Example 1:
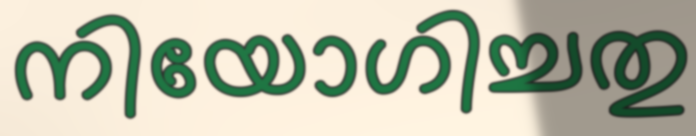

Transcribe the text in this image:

നിയോഗിച്ചതു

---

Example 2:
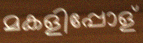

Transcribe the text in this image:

മകളിപ്പോള്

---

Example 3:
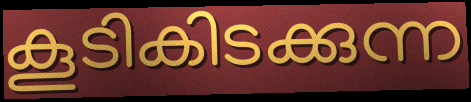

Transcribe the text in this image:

കൂടികിടക്കുന്ന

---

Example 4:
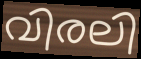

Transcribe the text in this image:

വിരലി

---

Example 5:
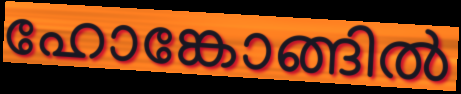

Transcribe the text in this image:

ഹോങ്കോങ്ങിൽ